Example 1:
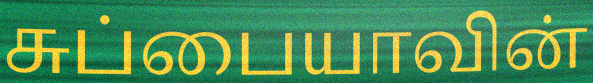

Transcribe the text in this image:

சுப்பையாவின்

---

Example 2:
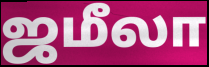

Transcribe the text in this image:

ஜமீலா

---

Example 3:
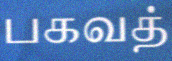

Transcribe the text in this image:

பகவத்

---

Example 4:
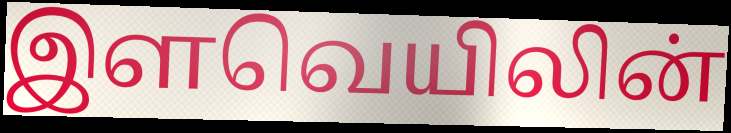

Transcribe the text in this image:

இளவெயிலின்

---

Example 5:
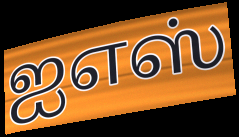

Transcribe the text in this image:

ஐஎஸ்